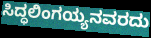
ಸಿದ್ಧಲಿಂಗಯ್ಯನವರದು